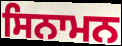
ਸਿਨਾਮਨ